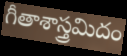
గీతాశాస్త్రమిదం